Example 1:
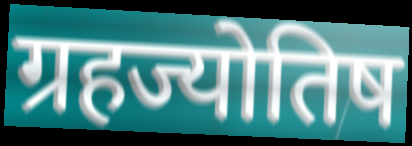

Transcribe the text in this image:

ग्रहज्योतिष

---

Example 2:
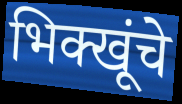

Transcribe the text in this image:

भिक्खूंचे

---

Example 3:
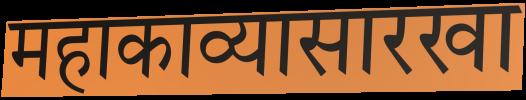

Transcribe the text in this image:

महाकाव्यासारखा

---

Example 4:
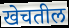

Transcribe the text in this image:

खेचतील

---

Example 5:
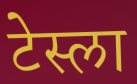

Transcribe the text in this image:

टेस्ला